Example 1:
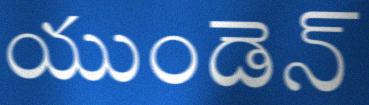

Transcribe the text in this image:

యుండెన్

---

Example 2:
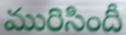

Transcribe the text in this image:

మురిసిందీ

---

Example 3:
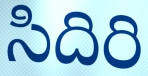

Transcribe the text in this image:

సిదిరి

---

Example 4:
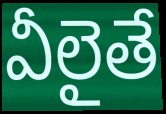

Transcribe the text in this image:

వీలైతే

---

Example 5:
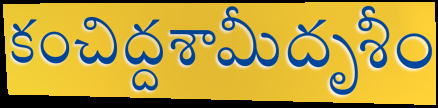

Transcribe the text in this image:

కంచిద్దశామీదృశీం